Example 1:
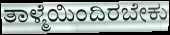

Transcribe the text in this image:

ತಾಳ್ಮೆಯಿಂದಿರಬೇಕು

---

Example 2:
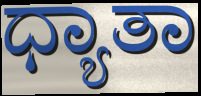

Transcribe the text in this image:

ಧ್ಯಾತಾ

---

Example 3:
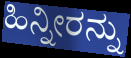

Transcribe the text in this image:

ಹಿನ್ನೀರನ್ನು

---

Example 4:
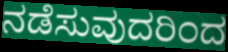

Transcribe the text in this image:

ನಡೆಸುವುದರಿಂದ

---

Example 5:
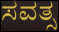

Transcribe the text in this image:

ಸವತ್ಸ